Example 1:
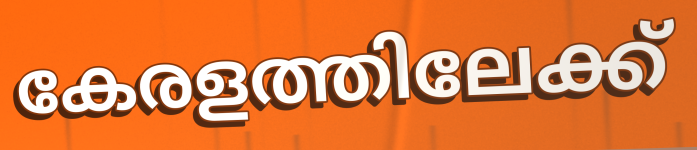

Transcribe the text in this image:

കേരളത്തിലേക്ക്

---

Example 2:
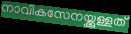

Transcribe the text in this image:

നാവികസേനയ്ക്കുള്ളത്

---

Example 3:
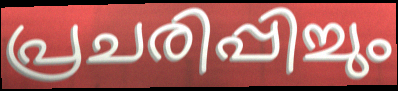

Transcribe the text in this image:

പ്രചരിപ്പിച്ചും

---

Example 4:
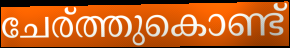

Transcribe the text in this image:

ചേര്ത്തുകൊണ്ട്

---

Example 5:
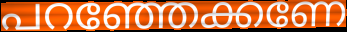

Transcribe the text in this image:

പറഞ്ഞേക്കണേ